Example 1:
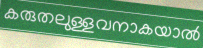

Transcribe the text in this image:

കരുതലുള്ളവനാകയാൽ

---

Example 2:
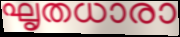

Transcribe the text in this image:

ഘൃതധാരാ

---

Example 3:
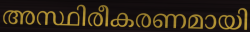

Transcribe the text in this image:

അസ്ഥിരീകരണമായി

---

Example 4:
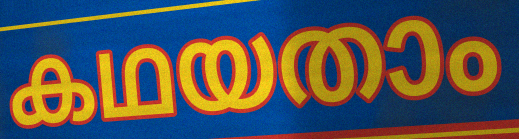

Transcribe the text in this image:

കഥയതാം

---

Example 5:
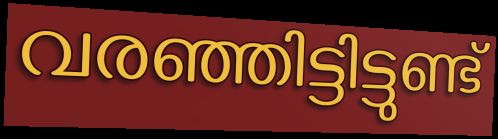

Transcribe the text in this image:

വരഞ്ഞിട്ടിട്ടുണ്ട്